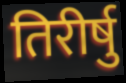
तिरीर्षु